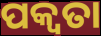
ପକ୍ୱତା